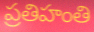
ప్రతిహంతి